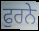
ਫੁਰਨੇ